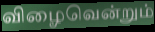
விழைவென்றும்